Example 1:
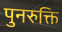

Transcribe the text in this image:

पुनरुक्ति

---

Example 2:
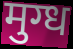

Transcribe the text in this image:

मुग्ध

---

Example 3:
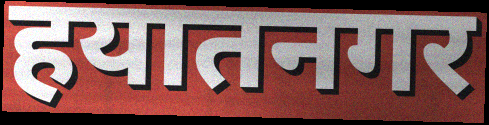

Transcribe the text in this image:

हयातनगर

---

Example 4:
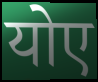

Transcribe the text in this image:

योए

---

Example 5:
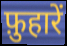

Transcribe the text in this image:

फ़ुहारें